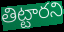
తిట్టారని